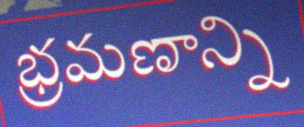
భ్రమణాన్ని